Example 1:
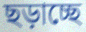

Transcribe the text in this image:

ছড়াচ্ছে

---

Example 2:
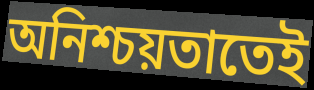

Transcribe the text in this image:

অনিশ্চয়তাতেই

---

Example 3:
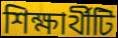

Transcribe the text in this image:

শিক্ষার্থীটি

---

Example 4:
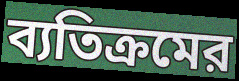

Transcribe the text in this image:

ব্যতিক্রমের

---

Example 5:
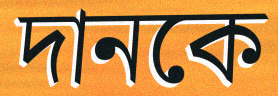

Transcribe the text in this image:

দানকে